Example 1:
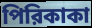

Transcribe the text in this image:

পিরিকাকা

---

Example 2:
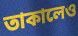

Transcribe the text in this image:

তাকালেও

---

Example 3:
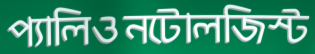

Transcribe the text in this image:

প্যালিওনটোলজিস্ট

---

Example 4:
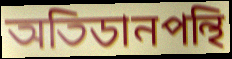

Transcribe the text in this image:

অতিডানপন্থি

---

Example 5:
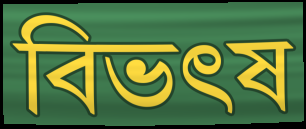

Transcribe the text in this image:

বিভৎষ